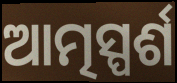
ଆତ୍ମସ୍ପର୍ଶ